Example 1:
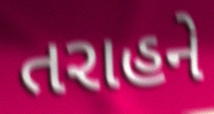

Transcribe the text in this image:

તરાહને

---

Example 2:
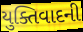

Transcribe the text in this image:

યુક્તિવાદની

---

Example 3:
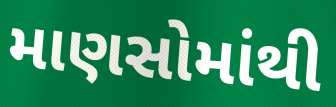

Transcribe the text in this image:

માણસોમાંથી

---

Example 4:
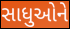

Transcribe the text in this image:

સાધુઓને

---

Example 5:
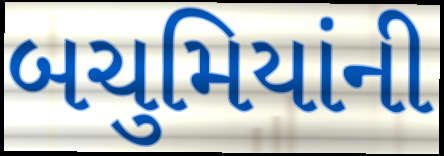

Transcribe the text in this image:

બચુમિયાંની